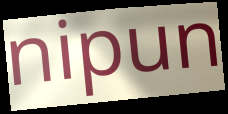
nipun